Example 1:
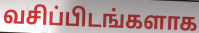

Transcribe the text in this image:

வசிப்பிடங்களாக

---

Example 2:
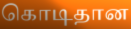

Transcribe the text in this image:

கொடிதான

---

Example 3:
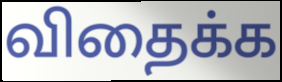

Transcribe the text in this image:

விதைக்க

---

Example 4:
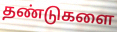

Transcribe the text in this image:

தண்டுகளை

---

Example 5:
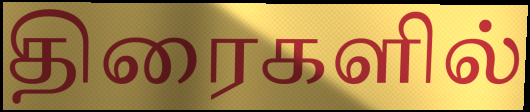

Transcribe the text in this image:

திரைகளில்